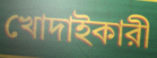
খোদাইকারী